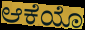
ಆಕೆಯೊ